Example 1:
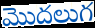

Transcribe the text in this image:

మొదలుగ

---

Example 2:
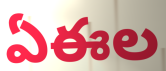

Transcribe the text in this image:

ఏఈల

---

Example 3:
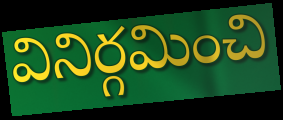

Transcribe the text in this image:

వినిర్గమించి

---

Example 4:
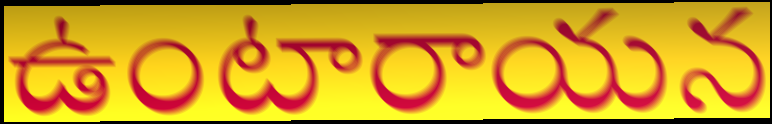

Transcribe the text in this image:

ఉంటారాయన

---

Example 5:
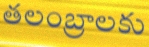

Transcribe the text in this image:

తలంబ్రాలకు